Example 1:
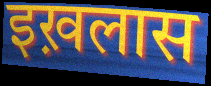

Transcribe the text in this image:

इख़लास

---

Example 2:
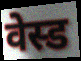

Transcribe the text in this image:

वेस्ड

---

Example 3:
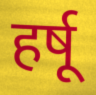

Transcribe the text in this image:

हर्षू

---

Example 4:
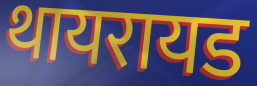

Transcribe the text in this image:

थायरायड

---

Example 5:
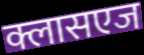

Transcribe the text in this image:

क्लासएज